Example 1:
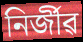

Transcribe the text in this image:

নিৰ্জীৱ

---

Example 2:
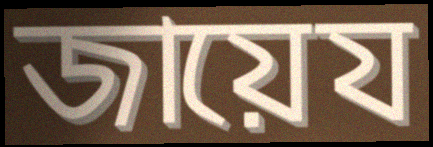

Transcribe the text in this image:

জায়েয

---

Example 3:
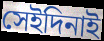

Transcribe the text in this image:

সেইদিনাই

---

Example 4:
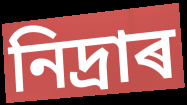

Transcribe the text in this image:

নিদ্ৰাৰ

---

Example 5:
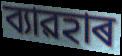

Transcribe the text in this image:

ব্যাৱহাৰ